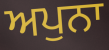
ਅਪੁਨਾ